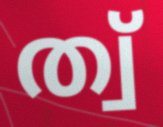
ത്വ്